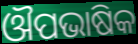
ଔପଭାଷିକ